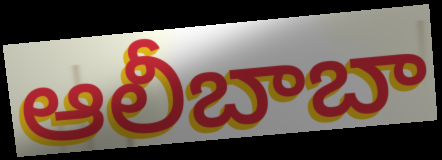
ఆలీబాబా